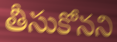
తీసుకోనని